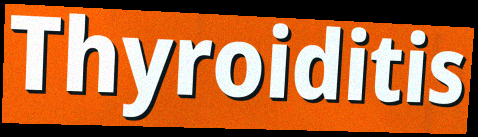
Thyroiditis